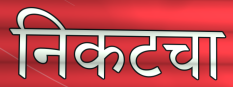
निकटचा